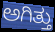
ಅಗಿತ್ತು